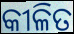
କୀଳିତ